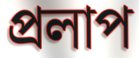
প্রলাপ